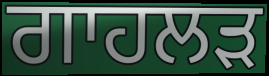
ਗਾਹਲੜ